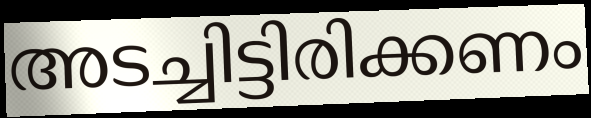
അടച്ചിട്ടിരിക്കണം